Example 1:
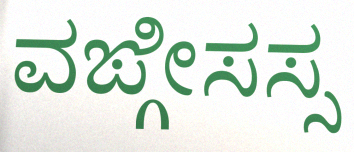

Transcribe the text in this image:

ವಙ್ಗೀಸಸ್ಸ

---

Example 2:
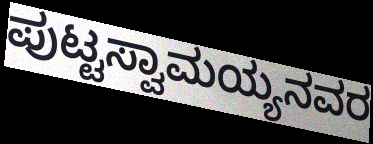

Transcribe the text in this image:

ಪುಟ್ಟಸ್ವಾಮಯ್ಯನವರ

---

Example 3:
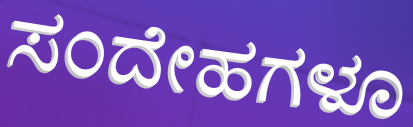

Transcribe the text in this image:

ಸಂದೇಹಗಳೂ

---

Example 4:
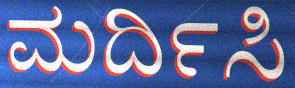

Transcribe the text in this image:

ಮರ್ದಿಸಿ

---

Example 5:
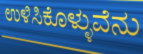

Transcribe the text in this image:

ಉಳಿಸಿಕೊಳ್ಳುವೆನು